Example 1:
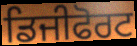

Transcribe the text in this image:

ਡਿਜੀਫੋਰਟ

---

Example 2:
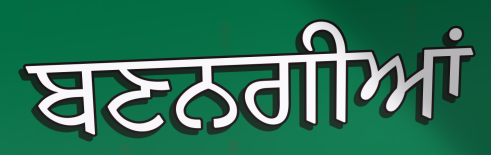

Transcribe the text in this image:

ਬਣਨਗੀਆਂ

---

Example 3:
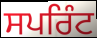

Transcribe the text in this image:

ਸਪਰਿੰਟ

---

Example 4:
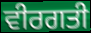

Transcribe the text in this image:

ਵੀਰਗਤੀ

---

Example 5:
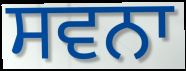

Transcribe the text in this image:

ਸਵਨਾ